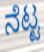
ನೆಟ್ಟ